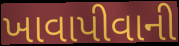
ખાવાપીવાની